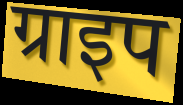
ग्राइप